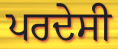
ਪਰਦੇਸੀ